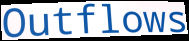
Outflows